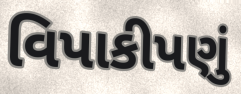
વિપાકીપણું